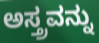
ಅಸ್ತ್ರವನ್ನು